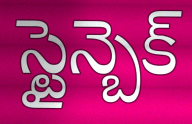
స్టైన్బెక్